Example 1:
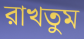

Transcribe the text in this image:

রাখতুম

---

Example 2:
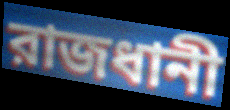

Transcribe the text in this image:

রাজধানী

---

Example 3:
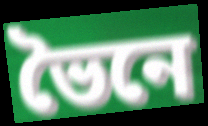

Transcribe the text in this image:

ভৈনে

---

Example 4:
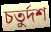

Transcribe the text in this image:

চতুর্দশ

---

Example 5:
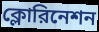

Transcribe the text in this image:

ক্লোরিনেশন